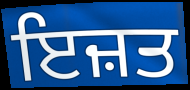
ਇਜ਼ਤ